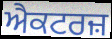
ਐਕਟਰਜ਼